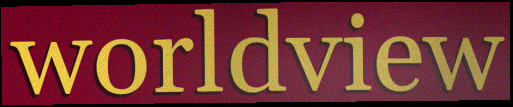
worldview